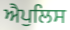
ਐਪੁਲਿਸ